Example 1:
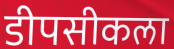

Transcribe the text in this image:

डीपसीकला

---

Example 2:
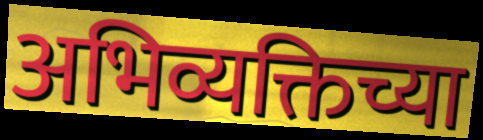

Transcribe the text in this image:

अभिव्यक्तिच्या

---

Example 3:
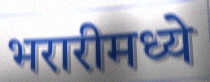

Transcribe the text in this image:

भरारीमध्ये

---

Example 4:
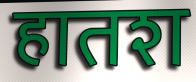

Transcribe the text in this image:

हातश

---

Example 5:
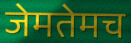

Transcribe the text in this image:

जेमतेमच